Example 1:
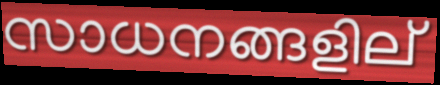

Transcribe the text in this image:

സാധനങ്ങളില്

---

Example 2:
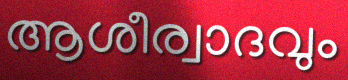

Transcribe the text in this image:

ആശീര്വാദവും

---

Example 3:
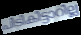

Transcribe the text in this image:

പിടികിട്ടാറില്ല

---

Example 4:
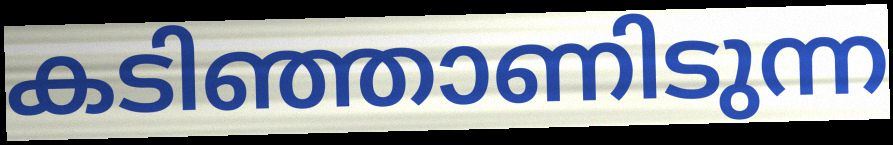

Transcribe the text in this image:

കടിഞ്ഞാണിടുന്ന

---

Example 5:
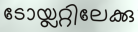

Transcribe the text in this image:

ടോയ്ലറ്റിലേക്കു